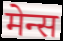
मेन्स